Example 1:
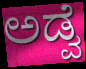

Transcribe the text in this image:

ಅಡ್ವೆ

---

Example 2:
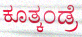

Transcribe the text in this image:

ಕೂತ್ಕಂಡ್ರೆ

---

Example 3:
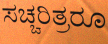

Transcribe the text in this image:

ಸಚ್ಚರಿತ್ರರೂ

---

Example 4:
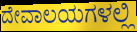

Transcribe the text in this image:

ದೇವಾಲಯಗಳಲ್ಲಿ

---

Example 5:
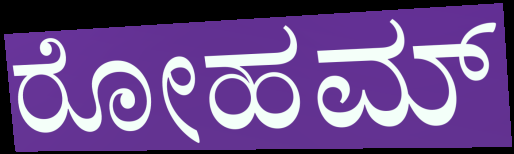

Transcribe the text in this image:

ರೋಹಮ್